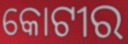
କୋଟୀର